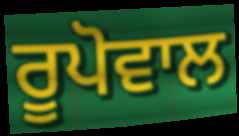
ਰੂਪੋਵਾਲ